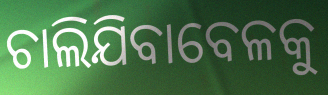
ଚାଲିଯିବାବେଳକୁ